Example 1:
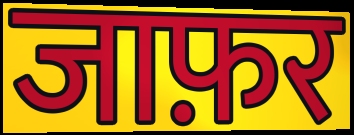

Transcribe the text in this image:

जाफ़र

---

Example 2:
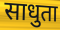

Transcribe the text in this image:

साधुता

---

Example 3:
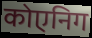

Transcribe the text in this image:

कोएनिग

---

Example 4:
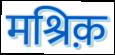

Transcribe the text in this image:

मश्रिक़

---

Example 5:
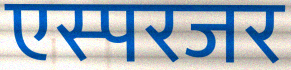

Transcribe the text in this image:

एस्परजर